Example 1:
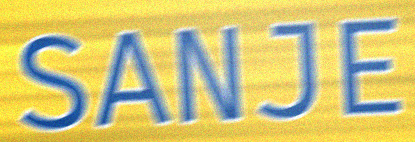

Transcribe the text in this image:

SANJE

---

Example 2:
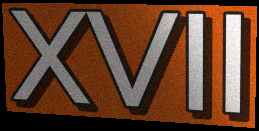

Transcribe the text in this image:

XVII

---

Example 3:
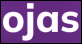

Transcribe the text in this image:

ojas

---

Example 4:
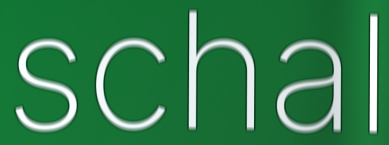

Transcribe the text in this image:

schal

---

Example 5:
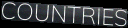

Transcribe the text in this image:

COUNTRIES